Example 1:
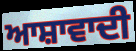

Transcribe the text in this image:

ਆਸ਼ਾਵਾਦੀ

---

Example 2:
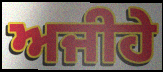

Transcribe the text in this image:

ਅਜੀਹੇ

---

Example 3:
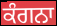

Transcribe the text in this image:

ਕੰਗਨਾ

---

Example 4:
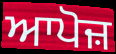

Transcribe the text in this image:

ਆਪੋਜ਼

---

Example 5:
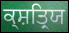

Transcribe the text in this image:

ਕ੍ਸ਼ਤ੍ਰਿਯ